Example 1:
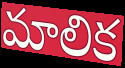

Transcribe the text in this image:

మాలిక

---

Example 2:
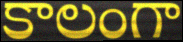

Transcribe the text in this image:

కాలంగా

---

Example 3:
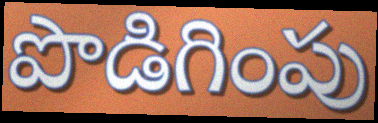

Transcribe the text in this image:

పొడిగింపు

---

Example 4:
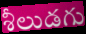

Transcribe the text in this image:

శీలుడగు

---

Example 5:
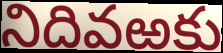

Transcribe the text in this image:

నిదివఱకు